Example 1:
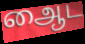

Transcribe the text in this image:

ஆைட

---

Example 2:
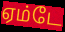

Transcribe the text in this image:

ஏம்டே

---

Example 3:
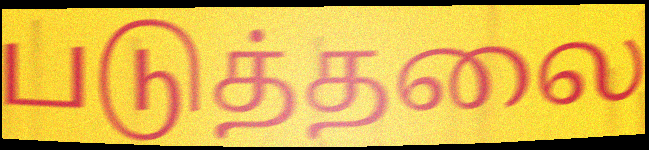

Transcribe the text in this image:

படுத்தலை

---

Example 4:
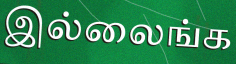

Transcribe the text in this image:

இல்லைங்க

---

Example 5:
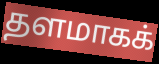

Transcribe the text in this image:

தளமாகக்